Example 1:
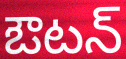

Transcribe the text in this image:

ఔటన్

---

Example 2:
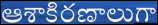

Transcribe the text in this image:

ఆశాకిరణాలుగా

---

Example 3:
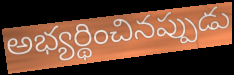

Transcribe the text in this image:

అభ్యర్థించినప్పుడు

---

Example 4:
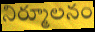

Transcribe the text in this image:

నిర్మూలనం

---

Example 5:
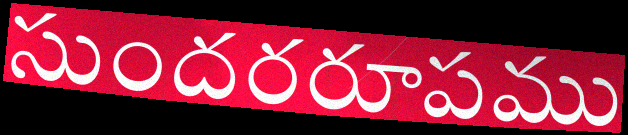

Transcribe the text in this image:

సుందరరూపము